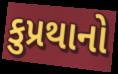
કુપ્રથાનો